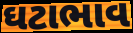
ઘટાભાવ